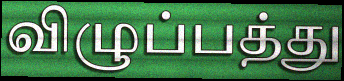
விழுப்பத்து